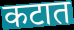
कटात